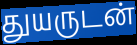
துயருடன்